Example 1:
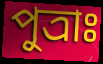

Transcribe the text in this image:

পুত্রাঃ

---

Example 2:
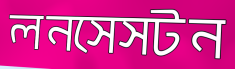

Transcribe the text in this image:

লনসেসটন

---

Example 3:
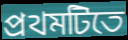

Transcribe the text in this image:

প্রথমটিতে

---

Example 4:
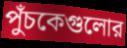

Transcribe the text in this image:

পুঁচকেগুলোর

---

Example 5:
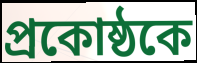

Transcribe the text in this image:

প্রকোষ্ঠকে